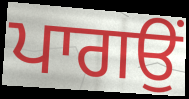
ਪਾਗਉਂ